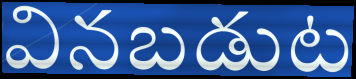
వినబడుట